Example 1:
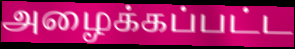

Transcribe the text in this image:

அழைக்கப்பட்ட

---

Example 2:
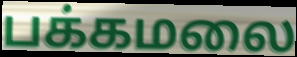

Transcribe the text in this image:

பக்கமலை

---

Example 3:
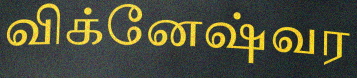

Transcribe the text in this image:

விக்னேஷ்வர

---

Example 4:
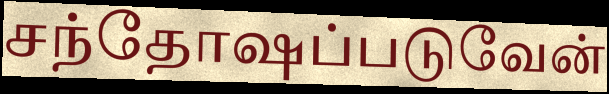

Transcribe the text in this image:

சந்தோஷப்படுவேன்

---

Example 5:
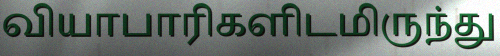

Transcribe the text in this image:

வியாபாரிகளிடமிருந்து